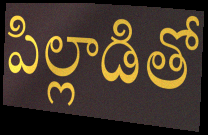
పిల్లాడితో